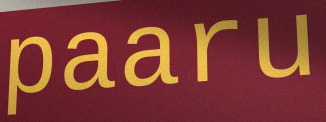
paaru